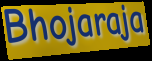
Bhojaraja